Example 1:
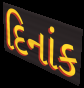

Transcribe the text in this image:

દિનાંક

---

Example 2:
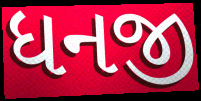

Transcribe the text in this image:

ધનજી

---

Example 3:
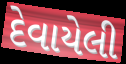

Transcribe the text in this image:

દેવાયેલી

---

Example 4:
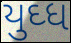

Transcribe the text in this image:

યુઘ્ધ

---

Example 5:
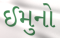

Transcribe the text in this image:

ઈમુનો